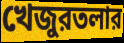
খেজুরতলার